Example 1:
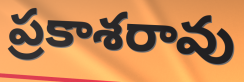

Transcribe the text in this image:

ప్రకాశరావు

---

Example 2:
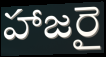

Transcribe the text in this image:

హాజరై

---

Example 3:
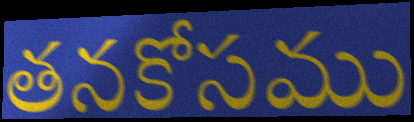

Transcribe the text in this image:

తనకోసము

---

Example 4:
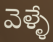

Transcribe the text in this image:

వెళ్ళే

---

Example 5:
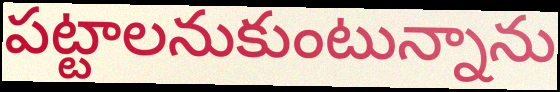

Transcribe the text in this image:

పట్టాలనుకుంటున్నాను